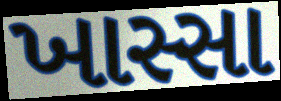
ખાસ્સા